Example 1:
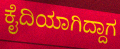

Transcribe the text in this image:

ಕೈದಿಯಾಗಿದ್ದಾಗ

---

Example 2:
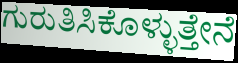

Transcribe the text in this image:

ಗುರುತಿಸಿಕೊಳ್ಳುತ್ತೇನೆ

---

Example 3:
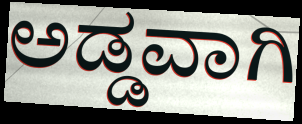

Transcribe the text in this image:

ಅಡ್ಡವಾಗಿ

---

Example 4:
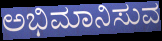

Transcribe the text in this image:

ಅಭಿಮಾನಿಸುವ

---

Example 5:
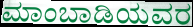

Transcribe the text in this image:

ಮಾಂಬಾಡಿಯವರ